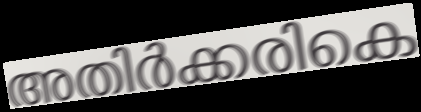
അതിർക്കരികെ